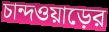
চান্দওয়াড়ের